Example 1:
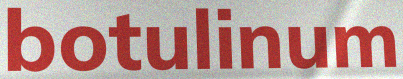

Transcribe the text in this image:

botulinum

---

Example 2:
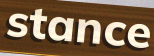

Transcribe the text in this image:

stance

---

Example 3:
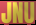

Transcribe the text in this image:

JNU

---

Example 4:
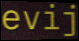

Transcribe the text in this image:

evij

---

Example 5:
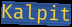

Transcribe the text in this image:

Kalpit